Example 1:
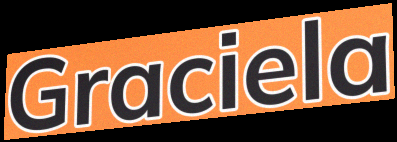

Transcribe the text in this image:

Graciela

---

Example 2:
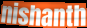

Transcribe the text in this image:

nishanth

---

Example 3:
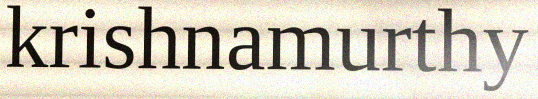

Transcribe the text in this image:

krishnamurthy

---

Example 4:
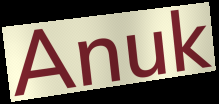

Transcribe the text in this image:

Anuk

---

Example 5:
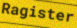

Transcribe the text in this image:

Ragister